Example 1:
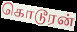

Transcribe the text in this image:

கொடூரன்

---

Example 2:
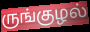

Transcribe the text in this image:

ருங்குழல்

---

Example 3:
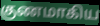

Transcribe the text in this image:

குணமாகிய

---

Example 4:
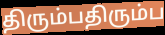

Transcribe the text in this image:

திரும்பதிரும்ப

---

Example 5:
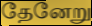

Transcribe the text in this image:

தேனேறு